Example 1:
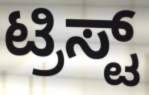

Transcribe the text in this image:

ಟ್ರಿಸ್ಟ್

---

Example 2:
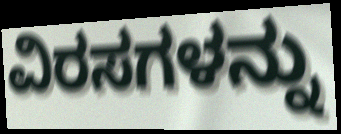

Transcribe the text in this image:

ವಿರಸಗಳನ್ನು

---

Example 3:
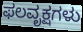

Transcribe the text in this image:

ಫಲವೃಕ್ಷಗಳು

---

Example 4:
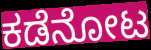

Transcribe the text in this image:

ಕಡೆನೋಟ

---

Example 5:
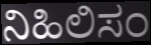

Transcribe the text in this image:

ನಿಹಿಲಿಸಂ